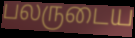
பலருடைய